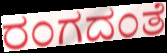
ರಂಗದಂತೆ